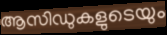
ആസിഡുകളുടെയും